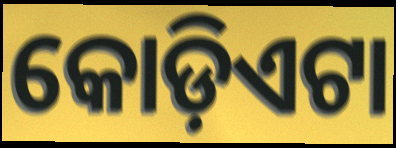
କୋଡ଼ିଏଟା